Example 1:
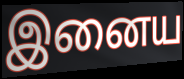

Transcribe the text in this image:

இனைய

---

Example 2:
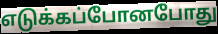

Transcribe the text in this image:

எடுக்கப்போனபோது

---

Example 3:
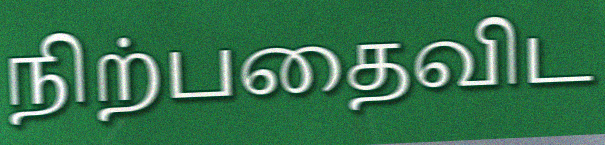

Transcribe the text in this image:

நிற்பதைவிட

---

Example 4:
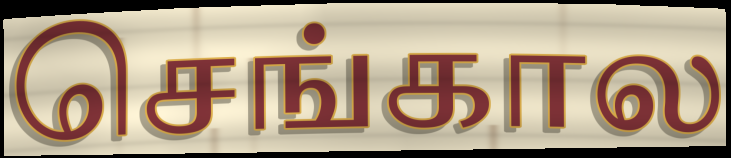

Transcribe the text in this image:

செங்கால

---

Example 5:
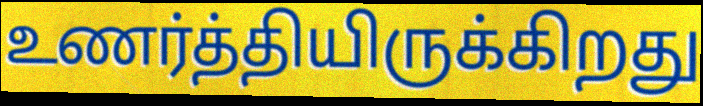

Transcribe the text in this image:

உணர்த்தியிருக்கிறது